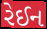
રેઈન